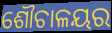
ଶୌଚାଳୟର